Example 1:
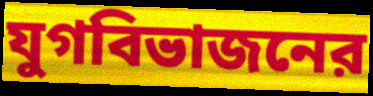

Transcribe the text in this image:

যুগবিভাজনের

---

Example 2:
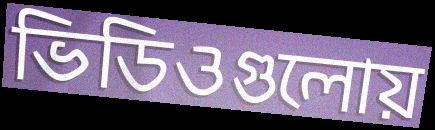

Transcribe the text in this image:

ভিডিওগুলোয়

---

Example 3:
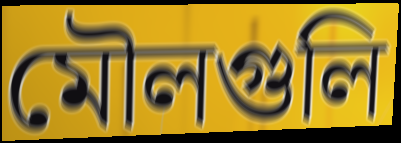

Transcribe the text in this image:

মৌলগুলি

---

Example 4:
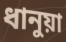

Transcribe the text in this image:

ধানুয়া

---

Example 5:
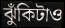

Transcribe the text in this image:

ঝুঁকিটাও